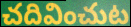
చదివించుట